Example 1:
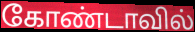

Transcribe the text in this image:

கோண்டாவில்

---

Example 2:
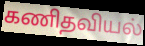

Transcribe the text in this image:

கணிதவியல்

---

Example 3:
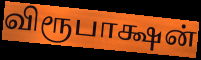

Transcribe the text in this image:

விரூபாக்ஷன்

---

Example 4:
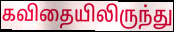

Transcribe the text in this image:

கவிதையிலிருந்து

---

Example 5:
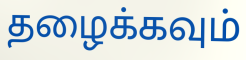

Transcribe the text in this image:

தழைக்கவும்